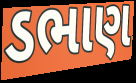
ડભાણ